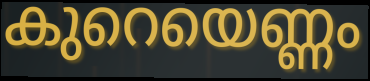
കുറെയെണ്ണം